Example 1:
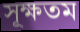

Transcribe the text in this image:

সূক্ষতম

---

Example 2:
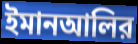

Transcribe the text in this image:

ইমানআলির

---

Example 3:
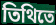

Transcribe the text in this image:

তিথিতে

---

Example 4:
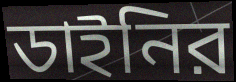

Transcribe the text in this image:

ডাইনির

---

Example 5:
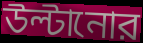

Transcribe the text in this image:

উল্টানোর